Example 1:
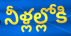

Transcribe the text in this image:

నీళ్లల్లోకి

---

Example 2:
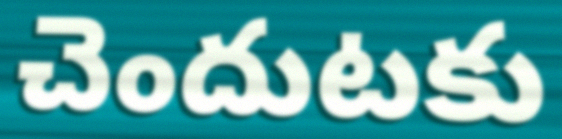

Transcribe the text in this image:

చెందుటకు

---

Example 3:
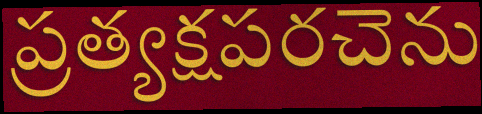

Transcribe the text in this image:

ప్రత్యక్షపరచెను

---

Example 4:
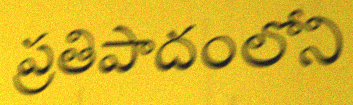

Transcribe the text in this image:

ప్రతిపాదంలోని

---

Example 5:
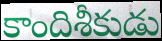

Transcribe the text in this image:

కాందిశీకుడు